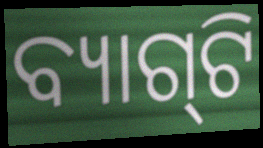
ବ୍ୟାଗ୍‌ଟି